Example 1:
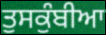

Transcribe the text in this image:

ਤੁਸਕੁੰਬੀਆ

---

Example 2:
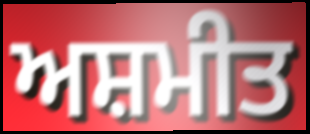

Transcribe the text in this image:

ਅਸ਼ਮੀਤ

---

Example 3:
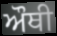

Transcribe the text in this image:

ਔਥੀ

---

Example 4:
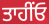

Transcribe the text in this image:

ਤਾਹੀਂਓ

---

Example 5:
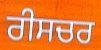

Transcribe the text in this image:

ਰੀਸਚਰ